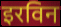
इरविन